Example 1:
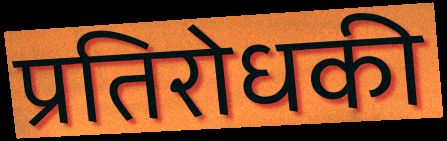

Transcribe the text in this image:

प्रतिरोधकी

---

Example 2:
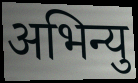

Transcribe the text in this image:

अभिन्यु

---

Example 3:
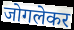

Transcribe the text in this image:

जोगलेकर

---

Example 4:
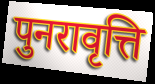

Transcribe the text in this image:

पुनरावृत्ति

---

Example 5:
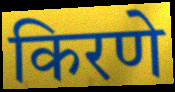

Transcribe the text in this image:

किरणे